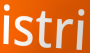
istri